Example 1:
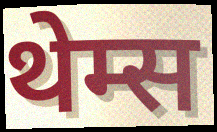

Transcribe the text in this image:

थेम्स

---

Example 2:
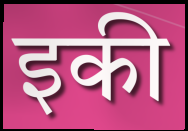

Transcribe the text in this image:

इकी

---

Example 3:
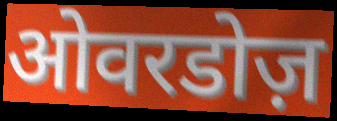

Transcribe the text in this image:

ओवरडोज़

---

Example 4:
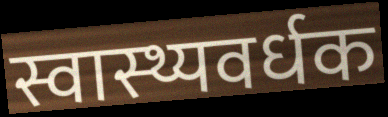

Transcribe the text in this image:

स्वास्थ्यवर्धक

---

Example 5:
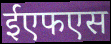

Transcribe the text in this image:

ईएफएस